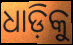
ଧାଡ଼ିକୁ